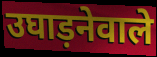
उघाड़नेवाले